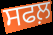
ਸਫਲ਼